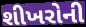
શીખરોની